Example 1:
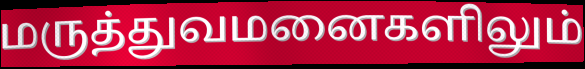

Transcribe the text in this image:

மருத்துவமனைகளிலும்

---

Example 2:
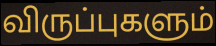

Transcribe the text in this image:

விருப்புகளும்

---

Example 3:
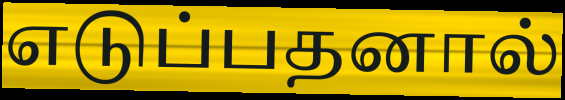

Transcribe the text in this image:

எடுப்பதனால்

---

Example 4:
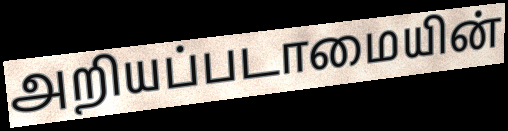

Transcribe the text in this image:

அறியப்படாமையின்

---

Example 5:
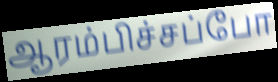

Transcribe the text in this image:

ஆரம்பிச்சப்போ